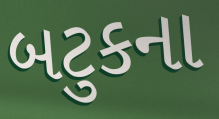
બટુકના